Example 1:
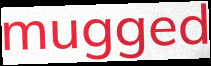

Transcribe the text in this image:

mugged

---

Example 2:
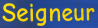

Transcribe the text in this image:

Seigneur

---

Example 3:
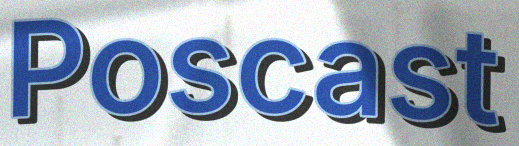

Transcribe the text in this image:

Poscast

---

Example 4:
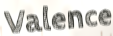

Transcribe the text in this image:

Valence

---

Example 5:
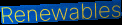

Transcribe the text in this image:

Renewables